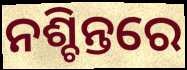
ନଶ୍ଚିନ୍ତରେ